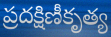
ప్రదక్షిణీకృత్య